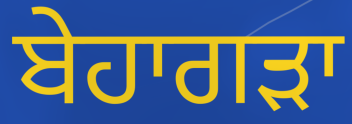
ਬੇਹਾਗੜਾ